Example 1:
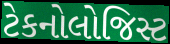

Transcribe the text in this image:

ટેકનોલોજિસ્ટ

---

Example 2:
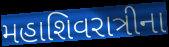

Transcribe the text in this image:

મહાશિવરાત્રીના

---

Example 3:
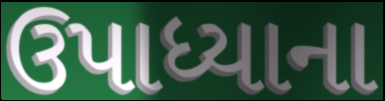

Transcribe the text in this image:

ઉપાધ્યાના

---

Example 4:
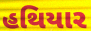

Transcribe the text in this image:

હથિયાર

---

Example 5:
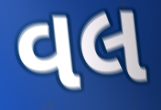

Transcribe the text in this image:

વલ